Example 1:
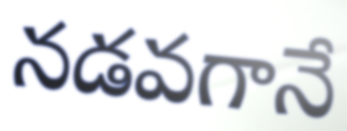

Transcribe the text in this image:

నడవగానే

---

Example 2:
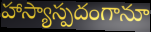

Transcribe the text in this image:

హాస్యాస్పదంగానూ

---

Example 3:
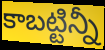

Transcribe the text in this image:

కాబట్టిన్నీ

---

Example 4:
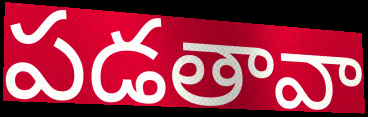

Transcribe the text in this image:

పడతావా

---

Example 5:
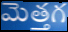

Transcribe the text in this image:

మెత్తగ